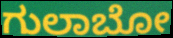
ಗುಲಾಬೋ